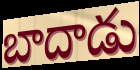
బాదాడు